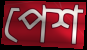
পেশ